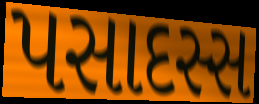
પસાદસ્સ